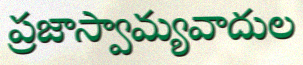
ప్రజాస్వామ్యవాదుల